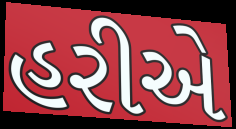
હરીએ